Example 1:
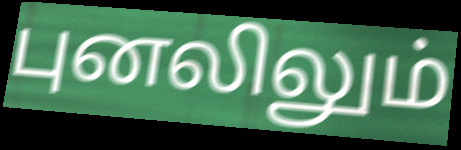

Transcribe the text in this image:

புனலிலும்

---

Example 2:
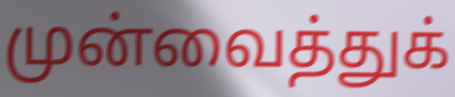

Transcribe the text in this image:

முன்வைத்துக்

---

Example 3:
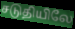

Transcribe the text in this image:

சடுதியிலே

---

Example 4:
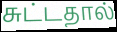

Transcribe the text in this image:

சுட்டதால்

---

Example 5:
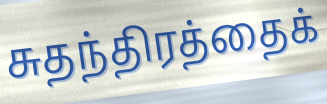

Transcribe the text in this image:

சுதந்திரத்தைக்